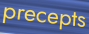
precepts